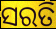
ସରତି